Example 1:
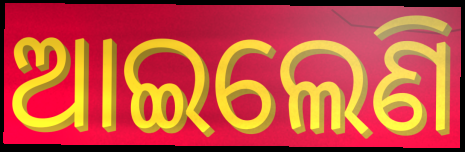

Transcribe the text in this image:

ଆଇଲେଣି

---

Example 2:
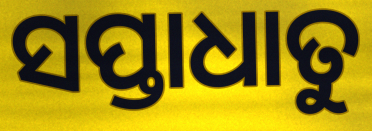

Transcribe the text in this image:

ସପ୍ତାଧାତୁ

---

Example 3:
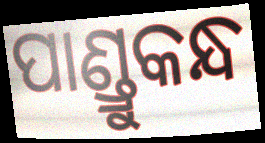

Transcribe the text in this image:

ପାଣ୍ଡ୍ରୁକନ୍ଧ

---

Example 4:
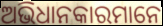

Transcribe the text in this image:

ଅଭିଧାନକାରମାନେ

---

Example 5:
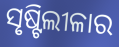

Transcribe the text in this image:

ସୃଷ୍ଟିଲୀଳାର